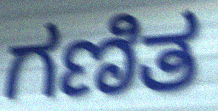
ಗಣಿತ